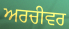
ਅਰਚੀਵਰ